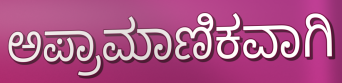
ಅಪ್ರಾಮಾಣಿಕವಾಗಿ